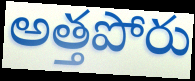
అత్తపోరు